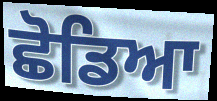
ਛੋਡਿਆ